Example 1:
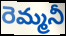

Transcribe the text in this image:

రెమ్మనీ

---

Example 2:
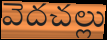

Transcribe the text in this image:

వెదచల్లు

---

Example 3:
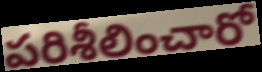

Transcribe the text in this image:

పరిశీలించారో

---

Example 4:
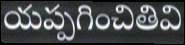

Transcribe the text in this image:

యప్పగించితివి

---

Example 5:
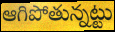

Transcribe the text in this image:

ఆగిపోతున్నట్టు